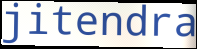
jitendra